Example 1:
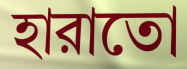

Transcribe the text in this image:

হারাতো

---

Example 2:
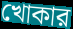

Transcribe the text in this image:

খোকার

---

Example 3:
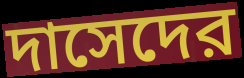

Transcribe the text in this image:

দাসেদের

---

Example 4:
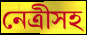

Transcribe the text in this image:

নেত্রীসহ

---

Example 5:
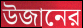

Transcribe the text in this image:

উজানের